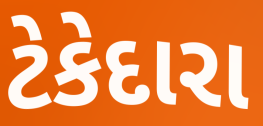
ટેકેદારા